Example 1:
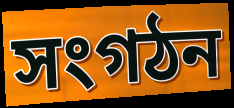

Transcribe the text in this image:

সংগঠন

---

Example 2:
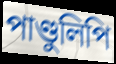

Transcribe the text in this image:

পাণ্ডুলিপি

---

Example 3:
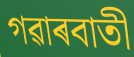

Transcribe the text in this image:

গৱাৰবাতী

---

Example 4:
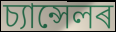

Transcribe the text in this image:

চ্যান্সেলৰ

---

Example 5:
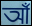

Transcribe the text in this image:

আঁ